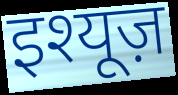
इश्यूज़